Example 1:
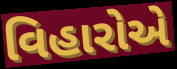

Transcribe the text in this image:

વિહારોએ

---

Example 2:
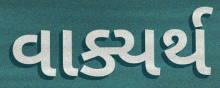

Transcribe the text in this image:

વાક્યર્થ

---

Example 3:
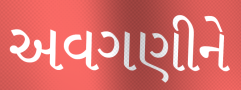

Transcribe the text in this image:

અવગણીને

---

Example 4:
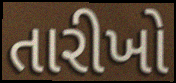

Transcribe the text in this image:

તારીખો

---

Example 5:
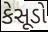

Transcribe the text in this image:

કેસૂડો